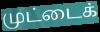
முட்டைக்